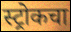
स्ट्रोकचा